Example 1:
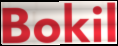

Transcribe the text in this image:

Bokil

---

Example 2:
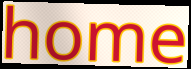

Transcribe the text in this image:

home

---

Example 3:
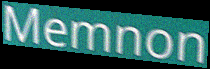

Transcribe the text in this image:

Memnon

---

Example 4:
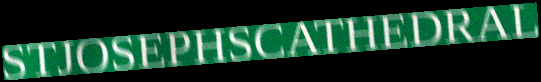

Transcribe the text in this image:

STJOSEPHSCATHEDRAL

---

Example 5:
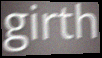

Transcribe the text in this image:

girth